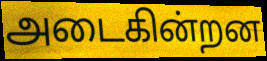
அடைகின்றன